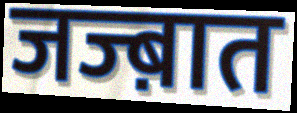
जज्ब़ात